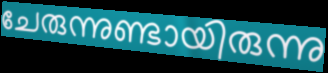
ചേരുന്നുണ്ടായിരുന്നു